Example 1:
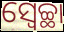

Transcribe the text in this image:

ସ୍ବେଚ୍ଛା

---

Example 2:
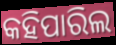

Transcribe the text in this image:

କହିପାରିଲ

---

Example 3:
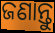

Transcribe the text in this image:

ଜଣାନ୍ତୁ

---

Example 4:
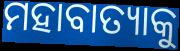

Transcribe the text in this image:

ମହାବାତ୍ୟାକୁ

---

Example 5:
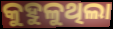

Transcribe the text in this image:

କୁହୁଳୁଥିଲା